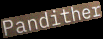
Pandither